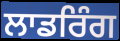
ਲਾਡਰਿੰਗ